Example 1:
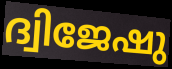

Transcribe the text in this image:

ദ്വിജേഷു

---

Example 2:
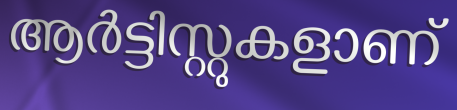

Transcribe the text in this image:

ആർട്ടിസ്റ്റുകളാണ്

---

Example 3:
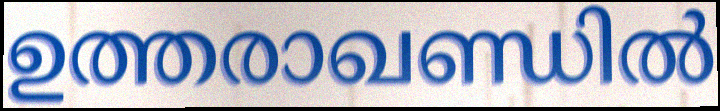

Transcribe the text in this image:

ഉത്തരാഖണ്ഡിൽ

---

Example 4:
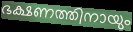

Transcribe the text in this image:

ഭക്ഷണത്തിനായും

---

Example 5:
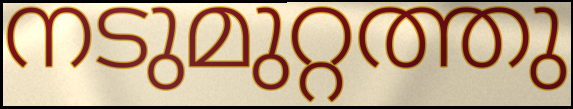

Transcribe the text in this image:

നടുമുറ്റത്തു